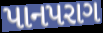
પાનપરાગ